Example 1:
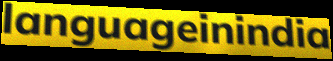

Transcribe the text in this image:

languageinindia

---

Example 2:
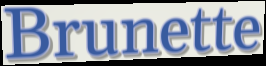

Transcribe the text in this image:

Brunette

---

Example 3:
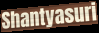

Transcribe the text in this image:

Shantyasuri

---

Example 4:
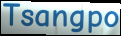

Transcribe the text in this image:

Tsangpo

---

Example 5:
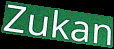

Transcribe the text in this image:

Zukan